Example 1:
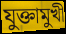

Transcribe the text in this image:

যুক্তামুখী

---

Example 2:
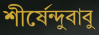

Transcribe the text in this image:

শীর্ষেন্দুবাবু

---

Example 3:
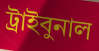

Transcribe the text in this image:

ট্রাইবুনাল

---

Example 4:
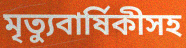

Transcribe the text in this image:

মৃত্যুবার্ষিকীসহ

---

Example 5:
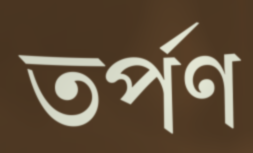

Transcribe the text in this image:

তর্পণ